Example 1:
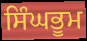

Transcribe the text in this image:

ਸਿੰਘਭੂਮ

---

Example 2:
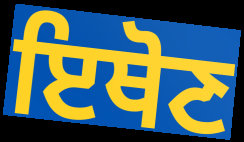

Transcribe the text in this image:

ਇਥੋਣ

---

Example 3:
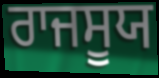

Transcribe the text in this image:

ਰਾਜਸੂਯ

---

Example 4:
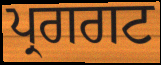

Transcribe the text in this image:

ਪ੍ਰਗਗਟ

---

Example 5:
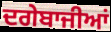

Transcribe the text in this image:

ਦਗੇਬਾਜੀਆਂ